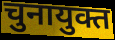
चुनायुक्त